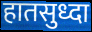
हातसुध्दा